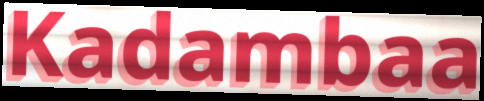
Kadambaa